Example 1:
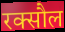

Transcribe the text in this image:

रक्सौल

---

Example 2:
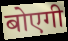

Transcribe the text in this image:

बोएगी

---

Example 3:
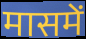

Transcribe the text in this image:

मासमें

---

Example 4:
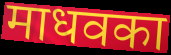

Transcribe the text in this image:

माधवका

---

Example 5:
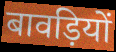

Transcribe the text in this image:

बावड़ियों